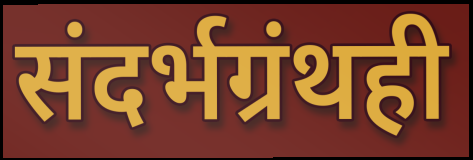
संदर्भग्रंथही